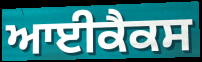
ਆਈਕੈਕਸ